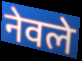
नेवले